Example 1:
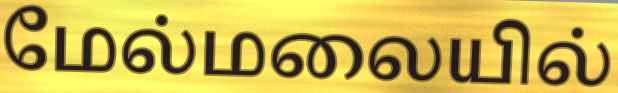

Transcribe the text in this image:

மேல்மலையில்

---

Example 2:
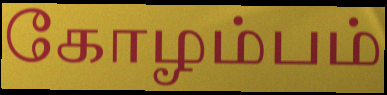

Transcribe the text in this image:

கோழம்பம்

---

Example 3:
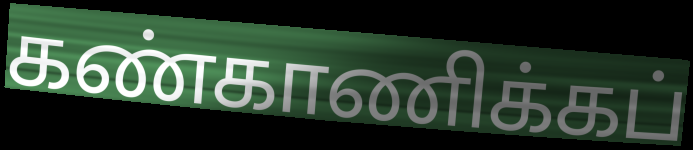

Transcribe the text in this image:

கண்காணிக்கப்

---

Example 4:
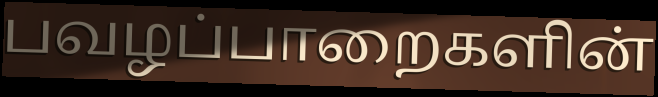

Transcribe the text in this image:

பவழப்பாறைகளின்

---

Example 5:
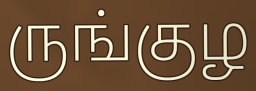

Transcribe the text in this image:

ருங்குழ